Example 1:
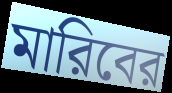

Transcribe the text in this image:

মারিবের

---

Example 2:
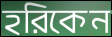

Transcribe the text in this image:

হরিকেন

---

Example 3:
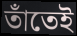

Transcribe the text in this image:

তাঁতেই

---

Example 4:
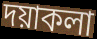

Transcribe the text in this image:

দয়াকলা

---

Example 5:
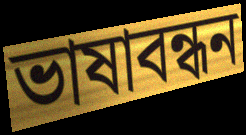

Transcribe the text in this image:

ভাষাবন্ধন